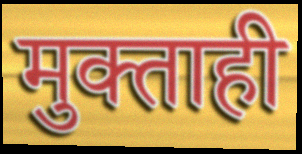
मुक्ताही